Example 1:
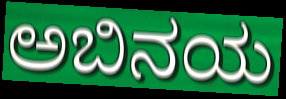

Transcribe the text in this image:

ಅಬಿನಯ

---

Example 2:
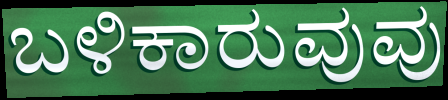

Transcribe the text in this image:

ಬಳಿಕಾರುವುವು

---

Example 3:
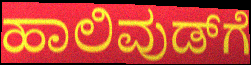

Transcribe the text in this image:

ಹಾಲಿವುಡ್‌ಗೆ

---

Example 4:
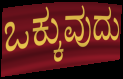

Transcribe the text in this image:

ಒಕ್ಕುವುದು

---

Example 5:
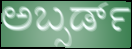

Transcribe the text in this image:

ಅಬ್ಸರ್ಡ್